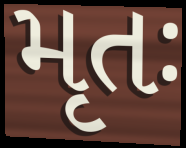
મૃતઃ